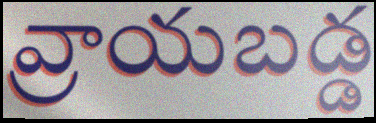
వ్రాయబడ్డ